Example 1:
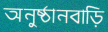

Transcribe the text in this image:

অনুষ্ঠানবাড়ি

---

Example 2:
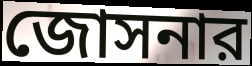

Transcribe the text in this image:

জোসনার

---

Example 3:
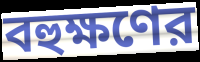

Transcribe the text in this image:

বহুক্ষণের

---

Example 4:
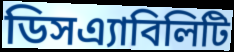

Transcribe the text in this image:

ডিসএ্যাবিলিটি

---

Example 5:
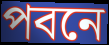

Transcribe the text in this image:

পবনে